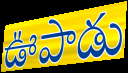
ఊపాడు